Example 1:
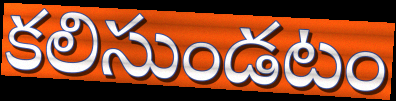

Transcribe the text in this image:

కలిసుండటం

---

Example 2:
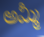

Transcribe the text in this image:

అమ్మీ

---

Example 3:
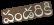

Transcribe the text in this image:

పండరికి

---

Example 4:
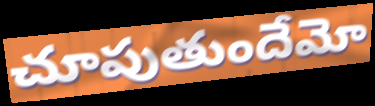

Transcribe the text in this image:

చూపుతుందేమో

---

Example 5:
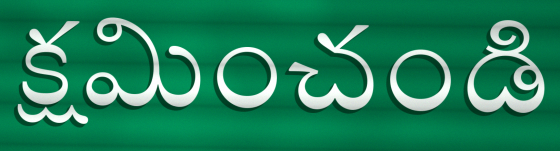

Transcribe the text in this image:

క్షమించండి